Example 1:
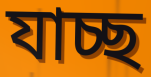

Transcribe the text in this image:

যাচ্ছ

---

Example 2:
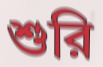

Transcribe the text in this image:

শুরি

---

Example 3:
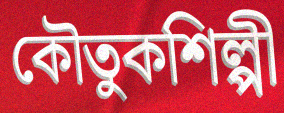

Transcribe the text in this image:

কৌতুকশিল্পী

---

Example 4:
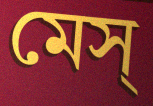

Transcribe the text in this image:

মেস্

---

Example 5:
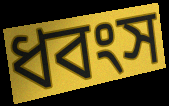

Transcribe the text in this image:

ধবংস